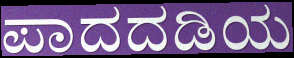
ಪಾದದಡಿಯ